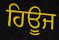
ਹਿਊਜ